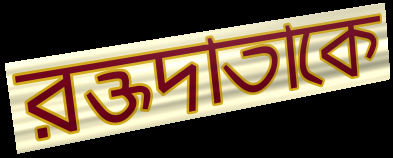
রক্তদাতাকে